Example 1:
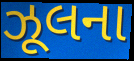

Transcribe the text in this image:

ઝૂલના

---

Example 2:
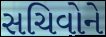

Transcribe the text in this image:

સચિવોને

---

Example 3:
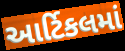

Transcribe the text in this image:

આર્ટિકલમાં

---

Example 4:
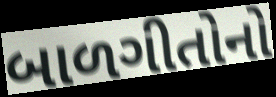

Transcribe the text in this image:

બાળગીતોનો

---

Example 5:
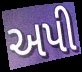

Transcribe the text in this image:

અપી